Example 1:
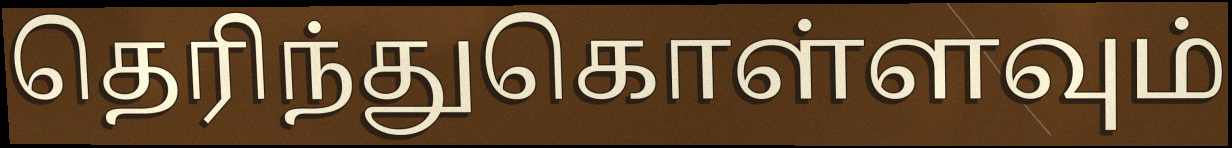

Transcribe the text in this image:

தெரிந்துகொள்ளவும்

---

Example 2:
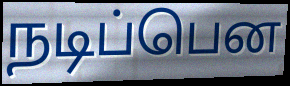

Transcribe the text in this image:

நடிப்பென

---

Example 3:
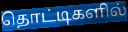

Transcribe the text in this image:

தொட்டிகளில்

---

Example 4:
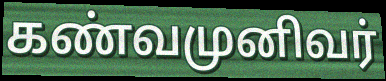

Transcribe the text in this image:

கண்வமுனிவர்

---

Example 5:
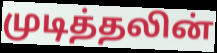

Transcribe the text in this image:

முடித்தலின்